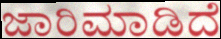
ಜಾರಿಮಾಡಿದೆ